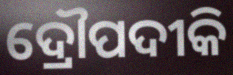
ଦ୍ରୌପଦୀକି